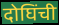
दोघिंची